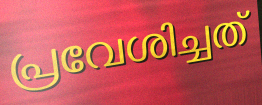
പ്രവേശിച്ചത്